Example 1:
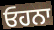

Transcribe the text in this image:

ਓਹਨਾ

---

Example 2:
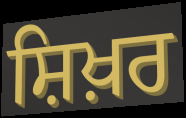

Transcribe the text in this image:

ਸ਼ਿਖ਼ਰ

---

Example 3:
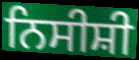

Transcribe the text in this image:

ਨਿਸੀਸ਼ੀ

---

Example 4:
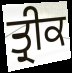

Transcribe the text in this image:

ਤ੍ਰੀਕ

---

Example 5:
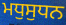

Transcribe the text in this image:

ਮਧੁਸੁਧਨ